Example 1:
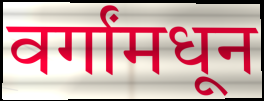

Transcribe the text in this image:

वर्गांमधून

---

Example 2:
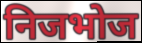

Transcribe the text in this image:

निजभोज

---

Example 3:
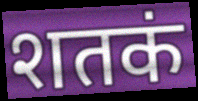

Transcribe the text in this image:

शतकं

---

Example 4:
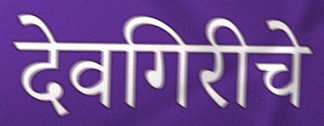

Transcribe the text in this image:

देवगिरीचे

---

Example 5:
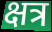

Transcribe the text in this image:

क्षत्र